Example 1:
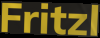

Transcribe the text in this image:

Fritzl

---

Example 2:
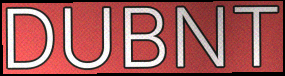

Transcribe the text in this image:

DUBNT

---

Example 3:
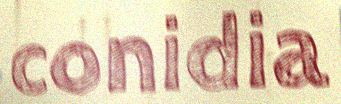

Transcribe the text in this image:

conidia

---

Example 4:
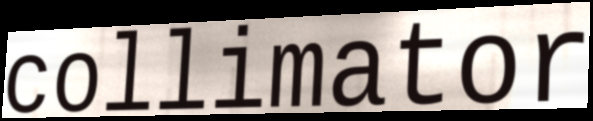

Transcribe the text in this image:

collimator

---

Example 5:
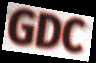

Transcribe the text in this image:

GDC